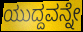
ಯುದ್ದವನ್ನೇ